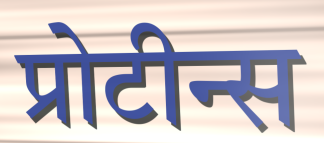
प्रोटीन्स